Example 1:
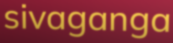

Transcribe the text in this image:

sivaganga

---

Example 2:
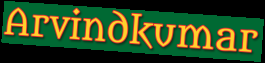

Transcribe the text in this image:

Arvindkumar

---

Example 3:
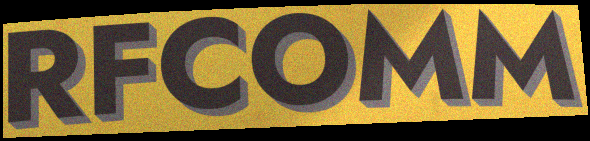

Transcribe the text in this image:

RFCOMM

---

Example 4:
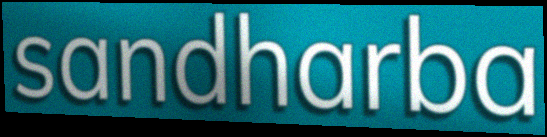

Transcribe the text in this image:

sandharba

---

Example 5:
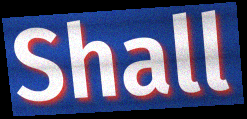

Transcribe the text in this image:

Shall